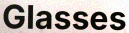
Glasses